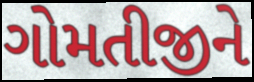
ગોમતીજીને